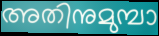
അതിനുമുമ്പാ